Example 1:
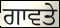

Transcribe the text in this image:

ਗਾਵਤੇ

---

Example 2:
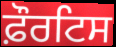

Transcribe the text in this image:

ਫ਼ੌਰਟਿਸ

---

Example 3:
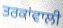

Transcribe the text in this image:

ਤਰਕਾਂਵਾਲੀ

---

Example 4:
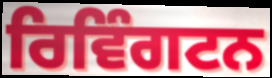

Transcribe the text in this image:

ਰਿਵਿੰਗਟਨ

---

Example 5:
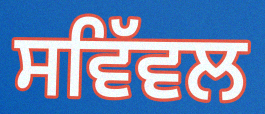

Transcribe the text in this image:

ਸਵਿੱਵਲ